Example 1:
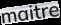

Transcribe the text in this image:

maitre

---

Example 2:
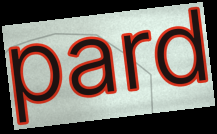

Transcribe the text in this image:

pard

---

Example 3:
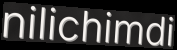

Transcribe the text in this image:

nilichimdi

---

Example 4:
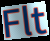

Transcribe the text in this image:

Flt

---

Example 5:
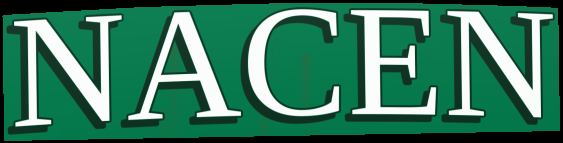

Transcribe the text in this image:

NACEN